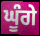
ਘੂੰਗੇ